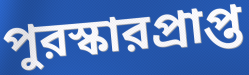
পুরস্কারপ্রাপ্ত